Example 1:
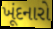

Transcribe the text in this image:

ખૂંદનારો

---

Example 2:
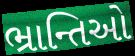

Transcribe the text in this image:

ભ્રાન્તિઓ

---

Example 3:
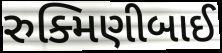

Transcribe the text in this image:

રુક્મિણીબાઈ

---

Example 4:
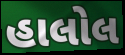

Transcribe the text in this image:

હાલોલ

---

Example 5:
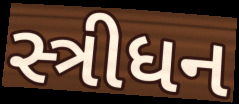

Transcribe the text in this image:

સ્ત્રીધન